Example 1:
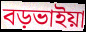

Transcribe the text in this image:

বড়ভাইয়া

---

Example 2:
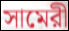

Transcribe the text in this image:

সামেরী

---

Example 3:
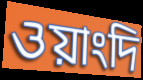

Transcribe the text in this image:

ওয়াংদি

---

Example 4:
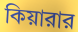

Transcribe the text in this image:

কিয়ারার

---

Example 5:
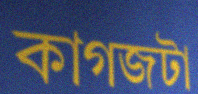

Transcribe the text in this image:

কাগজটা